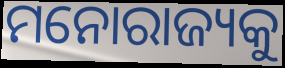
ମନୋରାଜ୍ୟକୁ